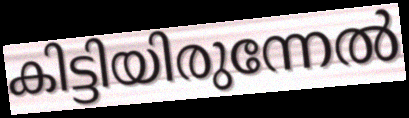
കിട്ടിയിരുന്നേൽ